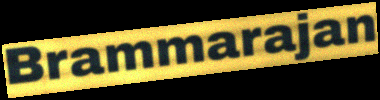
Brammarajan